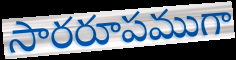
సారరూపముగా